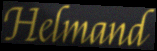
Helmand